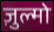
ज़ुल्मो